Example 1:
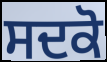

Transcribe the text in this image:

ਸਦਕੋ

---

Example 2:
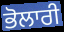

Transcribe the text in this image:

ਭੋਲਾਰੀ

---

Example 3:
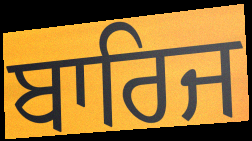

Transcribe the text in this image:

ਬਾਰਿਜ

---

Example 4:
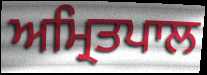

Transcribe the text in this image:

ਅਮ੍ਰਿਤਪਾਲ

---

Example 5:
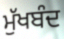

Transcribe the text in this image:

ਮੁੱਖਬੰਦ